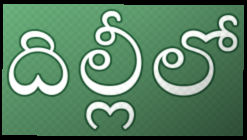
దిల్లీలో